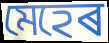
মেহেৰ